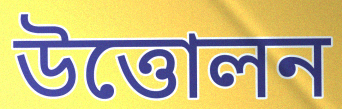
উত্তোলন